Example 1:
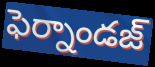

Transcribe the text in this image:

ఫెర్నాండజ్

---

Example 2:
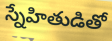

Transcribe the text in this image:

స్నేహితుడితో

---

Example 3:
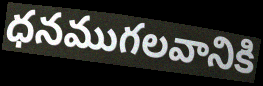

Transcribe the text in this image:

ధనముగలవానికి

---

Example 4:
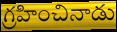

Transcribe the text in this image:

గ్రహించినాడు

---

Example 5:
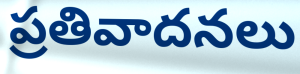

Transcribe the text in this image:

ప్రతివాదనలు